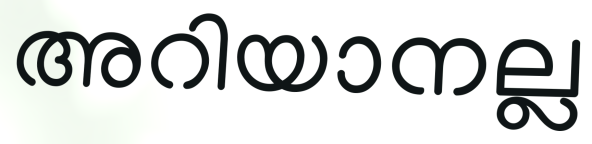
അറിയാനല്ല